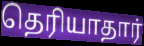
தெரியாதார்